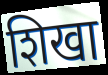
शिखा